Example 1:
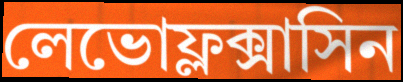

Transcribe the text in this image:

লেভোফ্লক্সাসিন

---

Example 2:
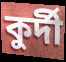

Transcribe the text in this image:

কুর্দী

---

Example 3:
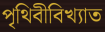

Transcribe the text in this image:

পৃথিবীবিখ্যাত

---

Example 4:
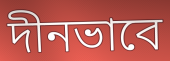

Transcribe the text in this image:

দীনভাবে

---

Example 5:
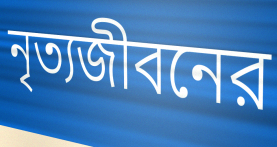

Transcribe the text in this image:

নৃত্যজীবনের